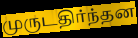
முருடதிர்ந்தன